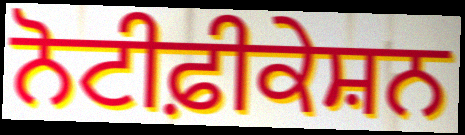
ਨੋਟੀਫ਼ੀਕੇਸ਼ਨ